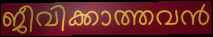
ജീവിക്കാത്തവൻ